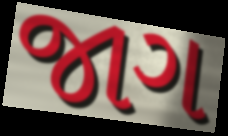
જાગ